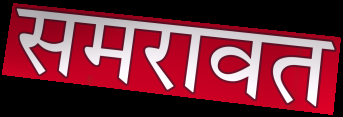
समरावत